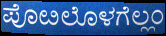
ಪೊೞಲೊಳಗೆಲ್ಲಂ